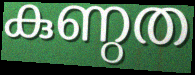
കുണ്ഠത